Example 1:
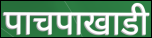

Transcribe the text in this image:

पाचपाखाडी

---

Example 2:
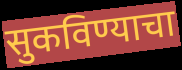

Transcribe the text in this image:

सुकविण्याचा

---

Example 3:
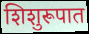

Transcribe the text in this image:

शिशुरूपात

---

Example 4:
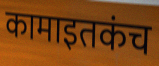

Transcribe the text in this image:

कामाइतकंच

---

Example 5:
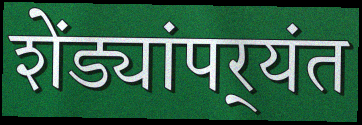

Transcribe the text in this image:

शेंड्यांपर्यंत